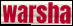
warsha